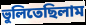
ভুলিতেছিলাম